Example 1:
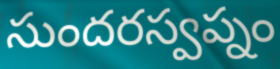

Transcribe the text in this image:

సుందరస్వప్నం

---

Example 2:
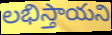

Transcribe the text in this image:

లభిస్తాయని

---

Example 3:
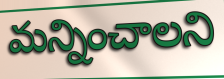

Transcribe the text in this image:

మన్నించాలని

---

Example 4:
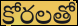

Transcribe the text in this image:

కోరలతో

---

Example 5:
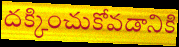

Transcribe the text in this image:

దక్కించుకోవడానికి